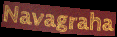
Navagraha